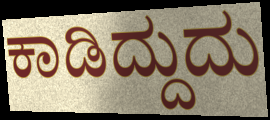
ಕಾಡಿದ್ದುದು